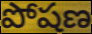
పోషణ